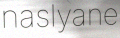
naslyane